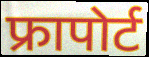
फ्रापोर्ट